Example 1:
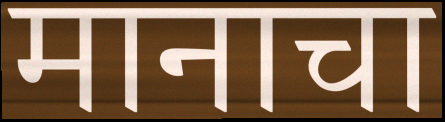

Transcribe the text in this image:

मानाचा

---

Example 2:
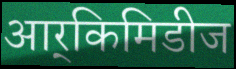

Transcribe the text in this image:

आर्किमिडीज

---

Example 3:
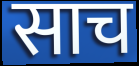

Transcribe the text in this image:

साच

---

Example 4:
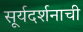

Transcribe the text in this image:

सूर्यदर्शनाची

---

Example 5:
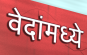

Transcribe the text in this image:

वेदांमध्ये